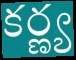
కర్ణ్య